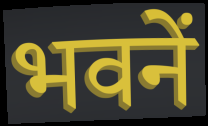
भवनें